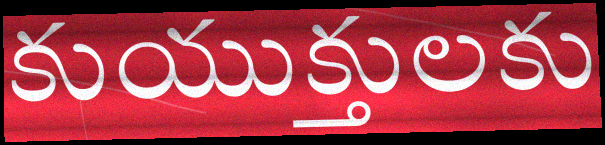
కుయుక్తులకు